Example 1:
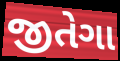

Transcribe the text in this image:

જીતેગા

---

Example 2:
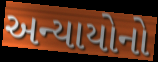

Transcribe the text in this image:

અન્યાયોનો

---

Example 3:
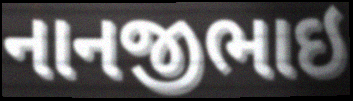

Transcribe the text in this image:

નાનજીભાઇ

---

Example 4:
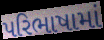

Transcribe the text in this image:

પરિભાષામાં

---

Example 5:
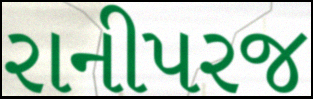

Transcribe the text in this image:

રાનીપરજ